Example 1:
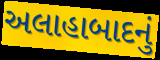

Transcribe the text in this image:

અલાહાબાદનું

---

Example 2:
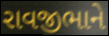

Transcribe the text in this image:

રાવજીભાને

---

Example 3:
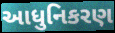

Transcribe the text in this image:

આધુનિકરણ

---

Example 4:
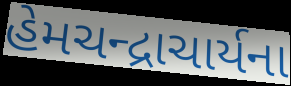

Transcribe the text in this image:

હેમચન્દ્રાચાર્યના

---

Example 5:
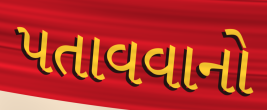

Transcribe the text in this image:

પતાવવાનો